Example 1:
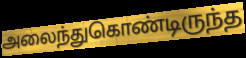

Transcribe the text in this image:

அலைந்துகொண்டிருந்த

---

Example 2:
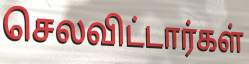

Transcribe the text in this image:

செலவிட்டார்கள்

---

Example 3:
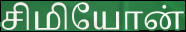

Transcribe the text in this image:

சிமியோன்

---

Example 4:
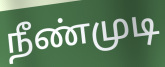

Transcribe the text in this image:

நீண்முடி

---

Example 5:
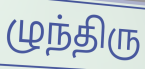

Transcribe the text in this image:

ழுந்திரு